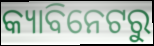
କ୍ୟାବିନେଟରୁ